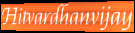
Hitvardhanvijay